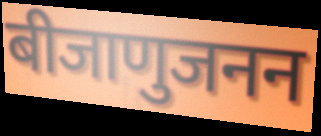
बीजाणुजनन